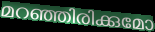
മറഞ്ഞിരിക്കുമോ